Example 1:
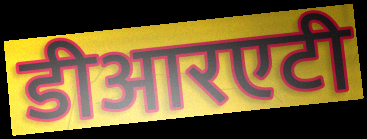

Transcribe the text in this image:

डीआरएटी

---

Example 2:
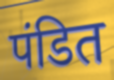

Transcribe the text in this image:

पंडित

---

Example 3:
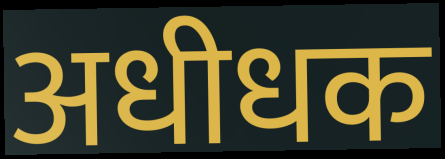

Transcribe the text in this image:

अधीधक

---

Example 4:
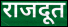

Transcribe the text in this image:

राजदूत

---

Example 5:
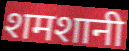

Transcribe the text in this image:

शमशानी